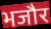
भजौर